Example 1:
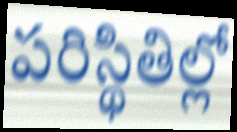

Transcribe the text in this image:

పరిస్థితిల్లో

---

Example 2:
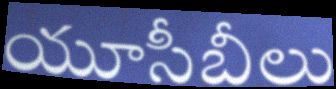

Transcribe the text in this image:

యూసీబీలు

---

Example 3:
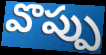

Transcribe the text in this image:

వొప్పు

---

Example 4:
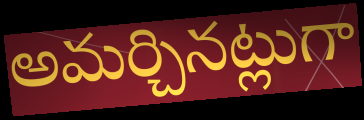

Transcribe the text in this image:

అమర్చినట్లుగా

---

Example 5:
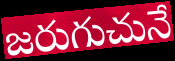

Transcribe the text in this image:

జరుగుచునే